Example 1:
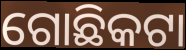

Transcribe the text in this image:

ଗୋଛିକଟା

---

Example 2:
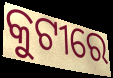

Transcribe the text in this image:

କୁଟୀରେ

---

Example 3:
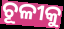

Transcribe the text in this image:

ଚୂଳୀକୁ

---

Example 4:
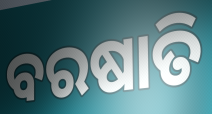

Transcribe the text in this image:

ବରଷାତି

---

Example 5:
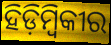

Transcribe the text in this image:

ହିଡ଼ିମ୍ବିକୀର